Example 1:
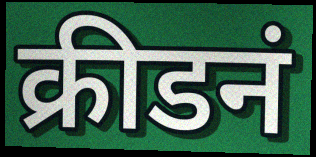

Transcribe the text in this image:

क्रीडनं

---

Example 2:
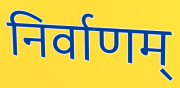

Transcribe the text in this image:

निर्वाणम्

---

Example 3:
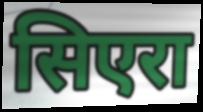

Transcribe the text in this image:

सिएरा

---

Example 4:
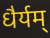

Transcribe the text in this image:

धैर्यम्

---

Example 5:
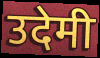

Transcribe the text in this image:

उदेमी